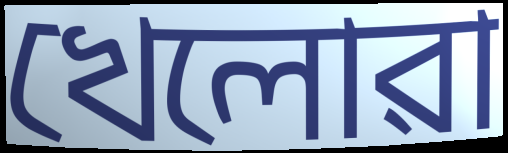
খেলোৱা